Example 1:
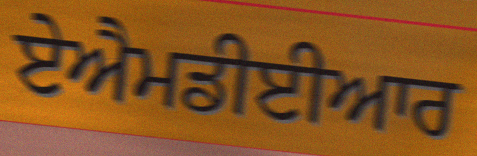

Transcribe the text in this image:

ਏਐਮਡੀਈਆਰ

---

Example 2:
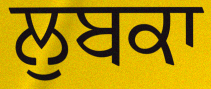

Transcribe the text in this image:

ਲੁਬਕਾ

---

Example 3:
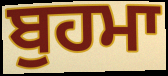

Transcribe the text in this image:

ਬੁਹਮਾ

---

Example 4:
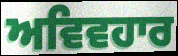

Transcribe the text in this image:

ਅਵਿਵਹਾਰ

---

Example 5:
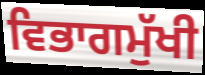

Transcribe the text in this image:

ਵਿਭਾਗਮੁੱਖੀ